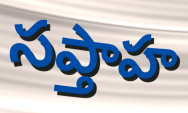
సప్తాహ